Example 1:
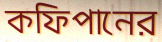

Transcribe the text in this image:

কফিপানের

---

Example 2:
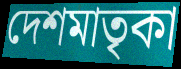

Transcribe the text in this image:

দেশমাতৃকা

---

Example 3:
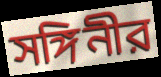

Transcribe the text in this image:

সঙ্গিনীর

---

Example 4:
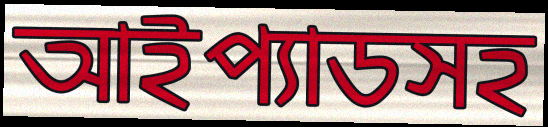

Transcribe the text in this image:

আইপ্যাডসহ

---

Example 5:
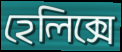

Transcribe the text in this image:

হেলিক্সে